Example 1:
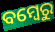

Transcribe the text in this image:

ବମ୍ବେରୁ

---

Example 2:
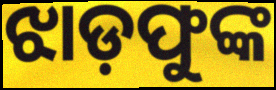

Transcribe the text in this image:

ଝାଡ଼ଫୁଙ୍କ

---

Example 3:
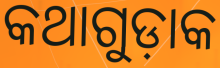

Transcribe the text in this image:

କଥାଗୁଡ଼ାକ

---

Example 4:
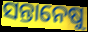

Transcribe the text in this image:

ସନ୍ତାନେଷୁ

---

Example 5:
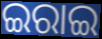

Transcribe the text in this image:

ଇରାଇ